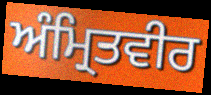
ਅੰਮ੍ਰਿਤਵੀਰ